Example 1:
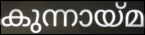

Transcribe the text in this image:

കുന്നായ്മ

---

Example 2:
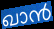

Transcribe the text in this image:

ഖാൻ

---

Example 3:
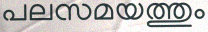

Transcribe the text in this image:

പലസമയത്തും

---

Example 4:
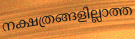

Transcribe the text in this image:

നക്ഷത്രങ്ങളില്ലാത്ത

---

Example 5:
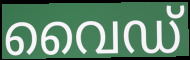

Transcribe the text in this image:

വൈഡ്